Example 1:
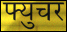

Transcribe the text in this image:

फ्युचर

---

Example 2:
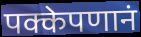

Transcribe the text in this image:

पक्केपणानं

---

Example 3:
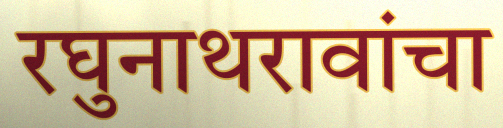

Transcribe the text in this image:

रघुनाथरावांचा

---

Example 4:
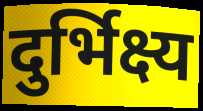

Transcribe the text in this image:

दुर्भिक्ष्य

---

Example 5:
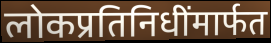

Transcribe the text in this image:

लोकप्रतिनिधींमार्फत